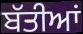
ਬੱਤੀਆਂ